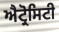
ਐਟ੍ਰੋਸਿਟੀ